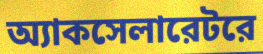
অ্যাকসেলারেটরে